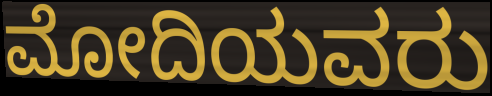
ಮೋದಿಯವರು